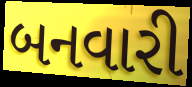
બનવારી